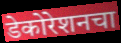
डेकोरेशनचा